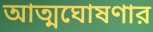
আত্মঘোষণার